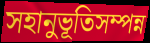
সহানুভূতিসম্পন্ন